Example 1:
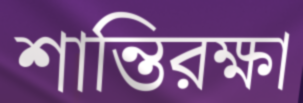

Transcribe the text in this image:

শান্তিরক্ষা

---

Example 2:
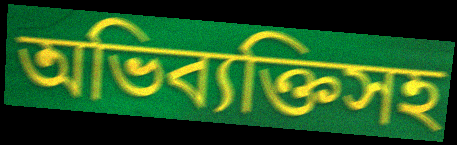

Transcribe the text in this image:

অভিব্যক্তিসহ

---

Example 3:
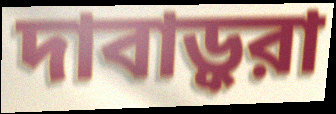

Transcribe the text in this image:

দাবাড়ুরা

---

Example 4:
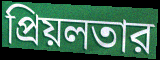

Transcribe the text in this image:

প্রিয়লতার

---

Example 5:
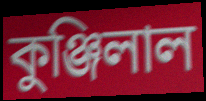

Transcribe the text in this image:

কুঞ্জিলাল